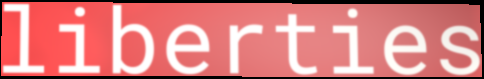
liberties